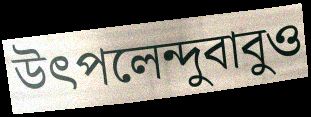
উৎপলেন্দুবাবুও